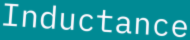
Inductance